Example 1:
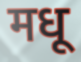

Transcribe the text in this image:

मधू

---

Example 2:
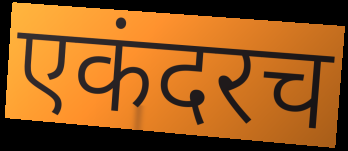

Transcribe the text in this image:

एकंदरच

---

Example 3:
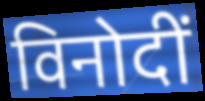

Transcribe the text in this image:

विनोदीं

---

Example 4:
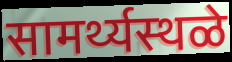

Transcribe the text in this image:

सामर्थ्यस्थळे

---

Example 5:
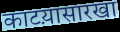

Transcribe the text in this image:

काटय़ासारखा